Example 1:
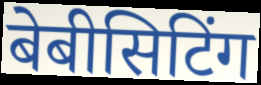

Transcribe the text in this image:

बेबीसिटिंग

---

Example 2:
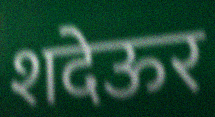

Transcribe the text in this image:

शदेऊर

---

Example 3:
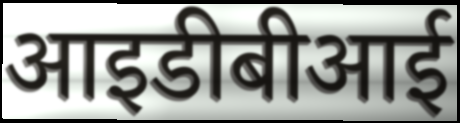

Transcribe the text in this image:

आइडीबीआई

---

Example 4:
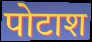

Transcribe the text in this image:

पोटाश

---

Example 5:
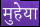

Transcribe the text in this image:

मुहेया